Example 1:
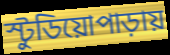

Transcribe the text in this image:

স্টুডিয়োপাড়ায়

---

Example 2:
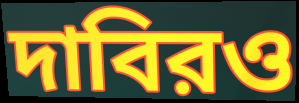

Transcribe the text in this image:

দাবিরও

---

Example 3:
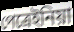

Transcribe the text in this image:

পেত্রেইনিয়া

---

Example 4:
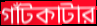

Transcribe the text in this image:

গাঁটকাটার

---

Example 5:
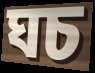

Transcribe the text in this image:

ঘচ